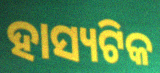
ହାସ୍ୟଟିକ